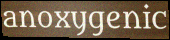
anoxygenic